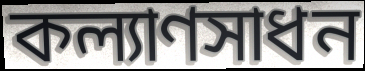
কল্যাণসাধন